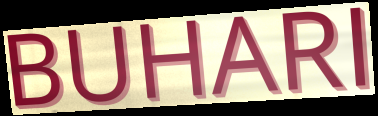
BUHARI